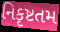
નિકૃષ્ટતમ